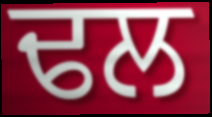
ਢਲ